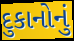
દુકાનોનું